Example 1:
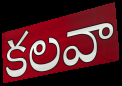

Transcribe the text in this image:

కలవా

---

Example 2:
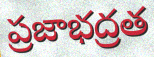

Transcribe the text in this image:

ప్రజాభద్రత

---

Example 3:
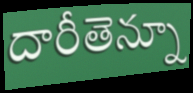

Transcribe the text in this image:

దారీతెన్నూ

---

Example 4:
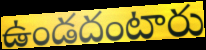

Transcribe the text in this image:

ఉండదంటారు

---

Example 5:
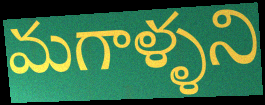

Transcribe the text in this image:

మగాళ్ళని